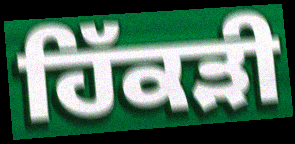
ਹਿੱਕੜੀ